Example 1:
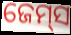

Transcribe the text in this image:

ଜେମ୍‍ସ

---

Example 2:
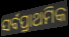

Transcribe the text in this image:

ସର୍ବପ୍ରାଥମିକ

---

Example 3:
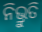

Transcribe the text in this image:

ନିଭ୍ରୁତି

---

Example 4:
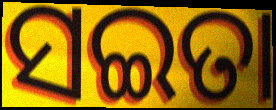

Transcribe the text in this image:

ସଇତା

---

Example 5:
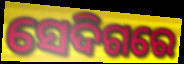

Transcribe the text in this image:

ସେଦିଗରେ